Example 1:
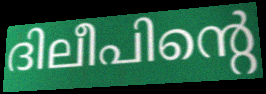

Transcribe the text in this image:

ദിലീപിന്റെ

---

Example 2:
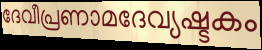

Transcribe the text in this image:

ദേവീപ്രണാമദേവ്യഷ്ടകം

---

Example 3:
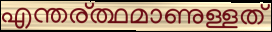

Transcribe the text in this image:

എന്തര്ത്ഥമാണുള്ളത്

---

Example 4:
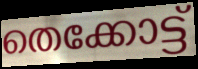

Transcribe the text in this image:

തെക്കോട്ട്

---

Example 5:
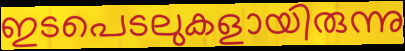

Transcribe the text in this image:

ഇടപെടലുകളായിരുന്നു